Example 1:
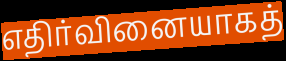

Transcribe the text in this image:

எதிர்வினையாகத்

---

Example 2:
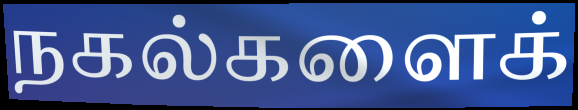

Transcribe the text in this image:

நகல்களைக்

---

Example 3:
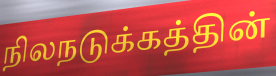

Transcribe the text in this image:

நிலநடுக்கத்தின்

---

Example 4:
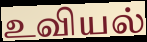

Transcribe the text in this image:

உவியல்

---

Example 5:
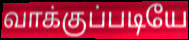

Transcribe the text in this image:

வாக்குப்படியே